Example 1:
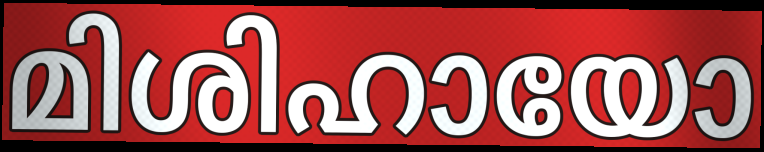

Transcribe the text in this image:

മിശിഹായോ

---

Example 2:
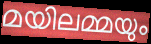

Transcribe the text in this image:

മയിലമ്മയും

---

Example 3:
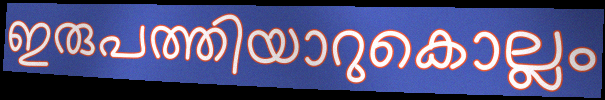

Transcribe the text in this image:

ഇരുപത്തിയാറുകൊല്ലം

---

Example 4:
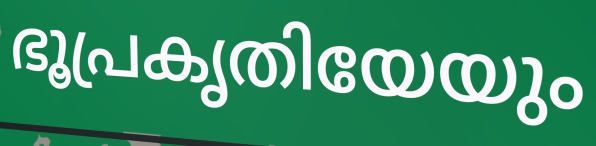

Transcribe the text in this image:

ഭൂപ്രകൃതിയേയും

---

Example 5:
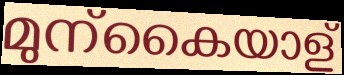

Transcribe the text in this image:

മുന്കൈയാള്